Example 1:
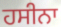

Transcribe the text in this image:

ਹਸੀਨਾ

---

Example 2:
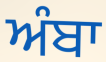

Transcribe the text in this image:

ਅੰਬਾ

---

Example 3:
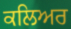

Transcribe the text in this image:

ਕਲਿਅਰ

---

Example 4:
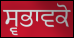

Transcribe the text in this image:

ਸ੍ਵਭਾਵਕੋ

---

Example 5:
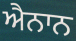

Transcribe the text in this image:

ਐਨਾਨ